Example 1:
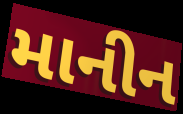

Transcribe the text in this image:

માનીન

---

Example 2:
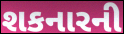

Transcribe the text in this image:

શકનારની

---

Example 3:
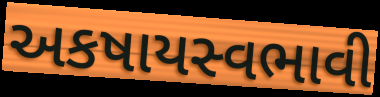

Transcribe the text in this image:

અકષાયસ્વભાવી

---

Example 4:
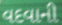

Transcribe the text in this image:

વદવાની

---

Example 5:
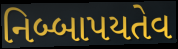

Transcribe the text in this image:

નિબ્બાપયતેવ